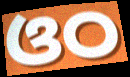
ଓଠ